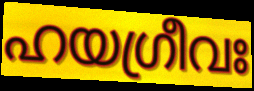
ഹയഗ്രീവഃ